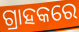
ଗ୍ରାହକରେ